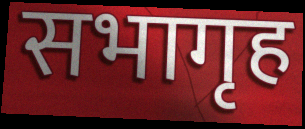
सभागृह